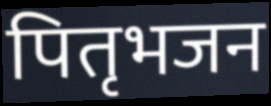
पितृभजन